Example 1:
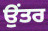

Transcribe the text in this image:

ਉਂਤਰ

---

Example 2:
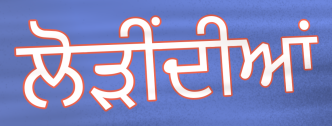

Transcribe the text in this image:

ਲੋੜੀਂਦੀਆਂ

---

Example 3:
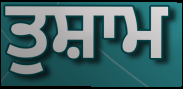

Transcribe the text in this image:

ਤੁਸ਼ਾਮ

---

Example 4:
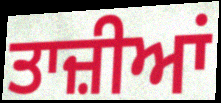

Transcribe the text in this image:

ਤਾਜ਼ੀਆਂ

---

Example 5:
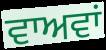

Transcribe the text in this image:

ਵਾਅਵਾਂ